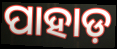
ପାହାଡ଼